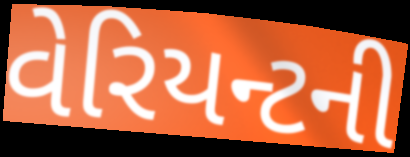
વેરિયન્ટની